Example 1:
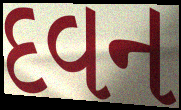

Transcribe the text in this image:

દવન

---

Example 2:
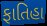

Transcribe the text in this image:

ફાતિહા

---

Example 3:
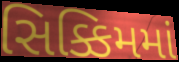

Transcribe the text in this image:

સિક્કિમમાં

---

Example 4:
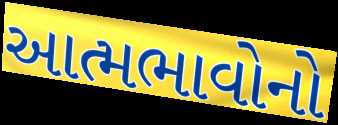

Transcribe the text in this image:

આત્મભાવોનો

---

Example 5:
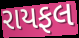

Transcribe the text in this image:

રાયફલ